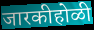
जारकीहोळी